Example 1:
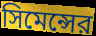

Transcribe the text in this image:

সিমেন্সের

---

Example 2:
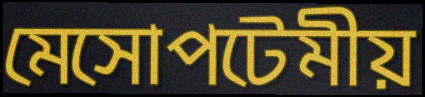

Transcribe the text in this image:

মেসোপটেমীয়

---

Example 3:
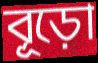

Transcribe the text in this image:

বূড়ো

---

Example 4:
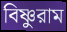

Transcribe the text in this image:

বিষ্ণুরাম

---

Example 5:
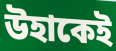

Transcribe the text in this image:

উহাকেই